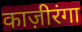
काज़ीरंगा